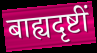
बाह्यदृष्टीं